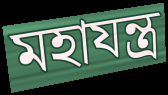
মহাযন্ত্র